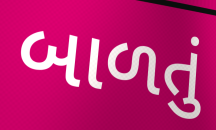
બાળતું